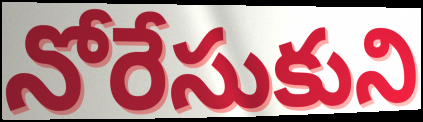
నోరేసుకుని